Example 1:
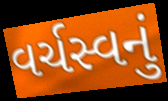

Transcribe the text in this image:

વર્ચસ્વનું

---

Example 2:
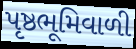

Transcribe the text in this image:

પૃષ્ઠભૂમિવાળી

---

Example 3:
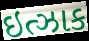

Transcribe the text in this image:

ઇત્ઝાક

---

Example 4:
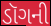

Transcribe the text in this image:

ડૉગની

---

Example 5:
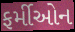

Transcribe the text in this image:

ફર્મીઓન